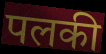
पलकी